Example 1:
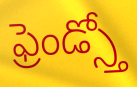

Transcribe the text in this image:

ఫ్రెండ్స్తో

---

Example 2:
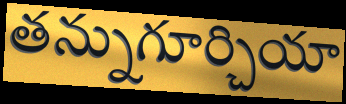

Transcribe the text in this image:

తన్నుగూర్చియా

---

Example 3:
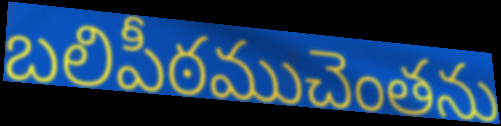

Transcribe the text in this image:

బలిపీఠముచెంతను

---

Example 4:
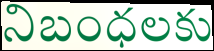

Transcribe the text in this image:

నిబంధలకు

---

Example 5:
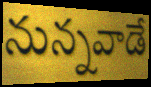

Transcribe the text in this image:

నున్నవాడే